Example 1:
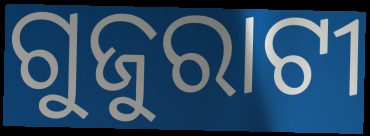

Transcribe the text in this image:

ଗୁଜୁରାଟୀ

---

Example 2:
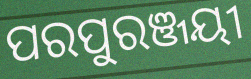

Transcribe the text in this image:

ପରପୁରଞ୍ଜୟୀ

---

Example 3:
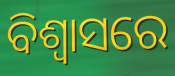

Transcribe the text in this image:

ବିଶ୍ବାସରେ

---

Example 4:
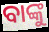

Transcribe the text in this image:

ବାଙ୍କୁ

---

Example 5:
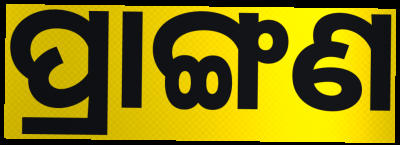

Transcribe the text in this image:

ପ୍ରାଙ୍ଗଣ